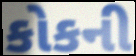
કોકની